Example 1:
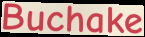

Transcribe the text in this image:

Buchake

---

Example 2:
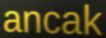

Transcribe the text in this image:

ancak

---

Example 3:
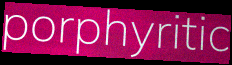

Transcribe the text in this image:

porphyritic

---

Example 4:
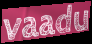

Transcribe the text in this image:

vaadu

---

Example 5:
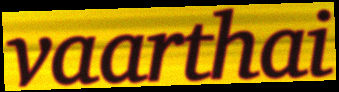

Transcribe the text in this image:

vaarthai